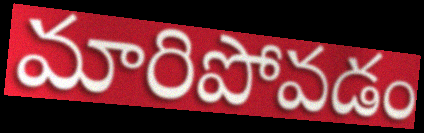
మారిపోవడం